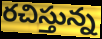
రచిస్తున్న